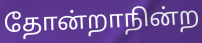
தோன்றாநின்ற